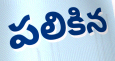
పలికిన